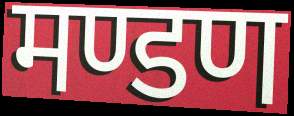
मण्डण